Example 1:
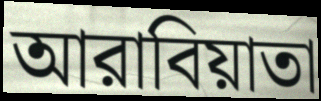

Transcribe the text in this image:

আরাবিয়াতা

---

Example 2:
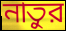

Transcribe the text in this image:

নাতুর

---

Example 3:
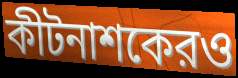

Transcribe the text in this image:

কীটনাশকেরও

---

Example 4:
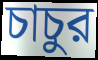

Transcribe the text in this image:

চাচুর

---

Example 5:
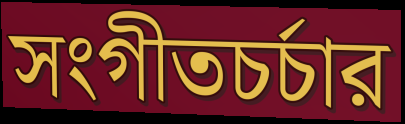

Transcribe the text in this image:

সংগীতচর্চার